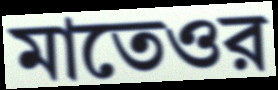
মাতেওর